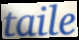
taile